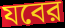
যবের